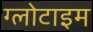
ग्लोटाइम